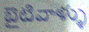
బైటివాళ్ళు